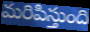
మరిపిస్తుంది